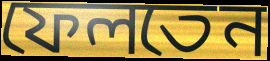
ফেলতেন